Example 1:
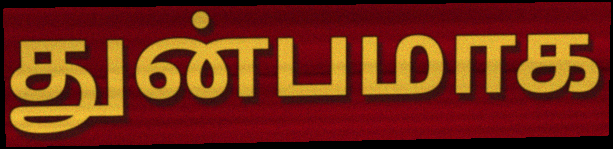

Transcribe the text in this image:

துன்பமாக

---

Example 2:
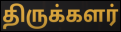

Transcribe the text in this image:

திருக்களர்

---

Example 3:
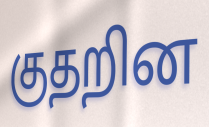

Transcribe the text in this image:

குதறின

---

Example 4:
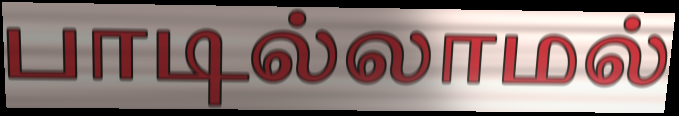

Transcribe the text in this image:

பாடில்லாமல்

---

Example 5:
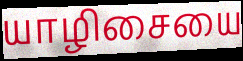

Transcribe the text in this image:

யாழிசையை